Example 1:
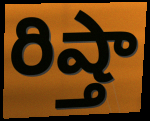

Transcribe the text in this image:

రిష్తా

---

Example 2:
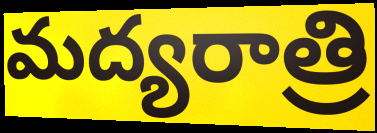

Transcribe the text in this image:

మద్యరాత్రి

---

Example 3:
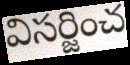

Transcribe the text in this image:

విసర్జించ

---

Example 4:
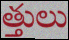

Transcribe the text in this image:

త్తులు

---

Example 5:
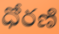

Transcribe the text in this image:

ధోరణి